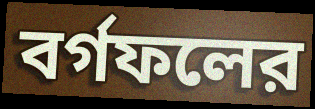
বর্গফলের